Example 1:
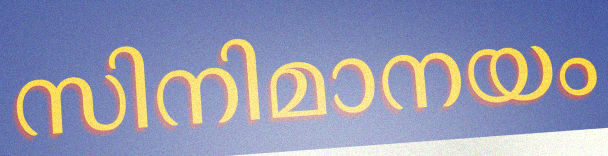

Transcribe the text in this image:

സിനിമാനയം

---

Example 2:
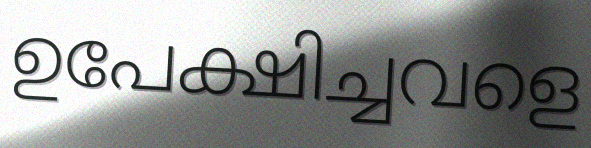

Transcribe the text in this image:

ഉപേക്ഷിച്ചവളെ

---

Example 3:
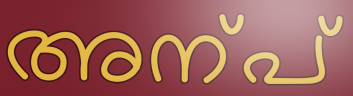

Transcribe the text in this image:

അന്പ്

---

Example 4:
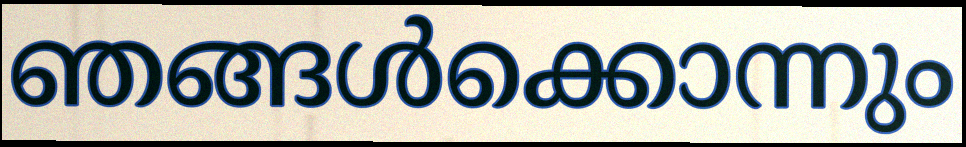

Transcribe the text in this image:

ഞങ്ങൾക്കൊന്നും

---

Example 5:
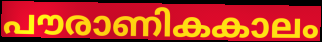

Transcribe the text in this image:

പൗരാണികകാലം